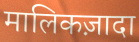
मालिकज़ादा